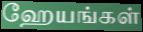
ஹேயங்கள்